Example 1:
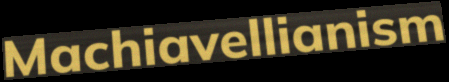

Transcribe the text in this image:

Machiavellianism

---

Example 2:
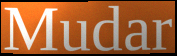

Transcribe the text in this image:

Mudar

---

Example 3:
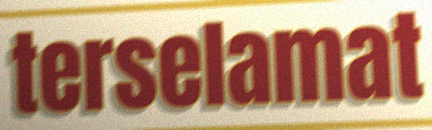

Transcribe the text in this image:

terselamat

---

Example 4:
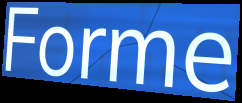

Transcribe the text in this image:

Forme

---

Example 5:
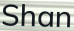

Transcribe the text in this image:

Shan